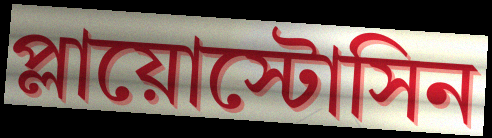
প্লায়োস্টোসিন